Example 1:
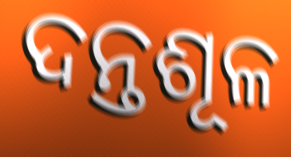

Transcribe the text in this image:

ଦନ୍ତଶୂଳ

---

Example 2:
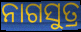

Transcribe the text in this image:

ନାଗସୁତ୍ର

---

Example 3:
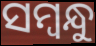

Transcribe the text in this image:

ସମ୍ବନ୍ଧୁ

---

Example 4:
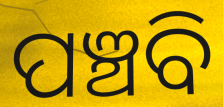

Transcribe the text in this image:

ପଞ୍ଚବି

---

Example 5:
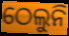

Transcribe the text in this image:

ଠେଲୁନି